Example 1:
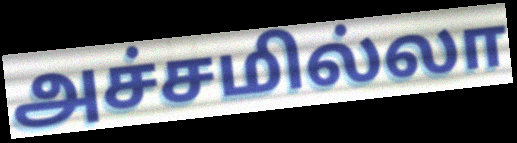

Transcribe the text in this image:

அச்சமில்லா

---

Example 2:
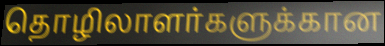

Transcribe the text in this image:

தொழிலாளர்களுக்கான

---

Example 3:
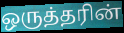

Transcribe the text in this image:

ஒருத்தரின்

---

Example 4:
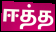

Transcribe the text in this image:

ஈத்த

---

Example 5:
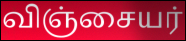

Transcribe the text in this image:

விஞ்சையர்